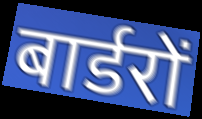
बार्डरों